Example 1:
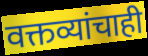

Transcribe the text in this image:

वक्तव्यांचाही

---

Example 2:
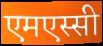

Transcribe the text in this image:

एमएस्सी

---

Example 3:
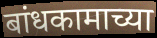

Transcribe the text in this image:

बांधकामाच्या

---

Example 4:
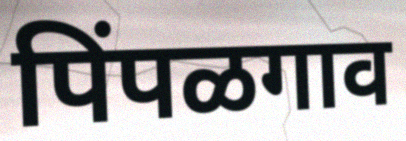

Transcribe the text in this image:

पिंपळगाव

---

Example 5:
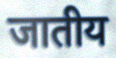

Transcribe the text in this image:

जातीय